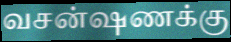
வசன்ஷணக்கு